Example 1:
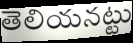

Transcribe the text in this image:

తెలియనట్టు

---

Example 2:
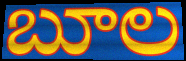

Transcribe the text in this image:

బూల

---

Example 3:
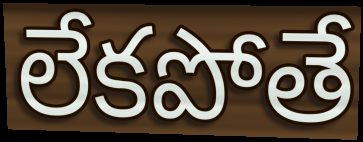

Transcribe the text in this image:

లేకపోతే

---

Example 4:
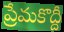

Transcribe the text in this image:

ప్రేమకొద్దీ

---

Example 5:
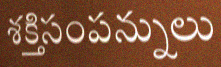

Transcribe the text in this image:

శక్తిసంపన్నులు